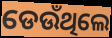
ଡେଉଁଥିଲେ